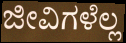
ಜೀವಿಗಳೆಲ್ಲ